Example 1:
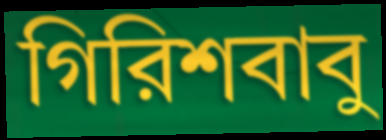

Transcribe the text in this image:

গিরিশবাবু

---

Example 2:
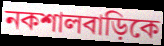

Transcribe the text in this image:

নকশালবাড়িকে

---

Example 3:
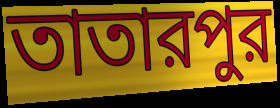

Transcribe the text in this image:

তাতারপুর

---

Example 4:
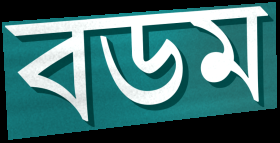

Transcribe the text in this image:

বডম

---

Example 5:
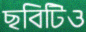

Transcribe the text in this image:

ছবিটিও